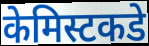
केमिस्टकडे